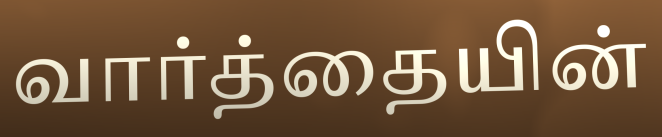
வார்த்தையின்